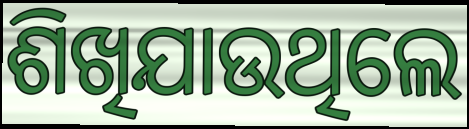
ଶିଖିଯାଉଥିଲେ